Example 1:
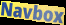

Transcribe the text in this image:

Navbox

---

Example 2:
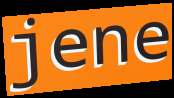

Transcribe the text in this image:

jene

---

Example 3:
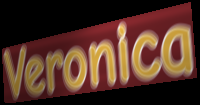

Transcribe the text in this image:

Veronica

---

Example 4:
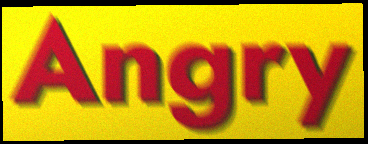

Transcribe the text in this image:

Angry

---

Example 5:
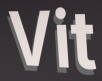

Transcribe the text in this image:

Vit